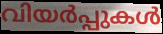
വിയർപ്പുകൾ